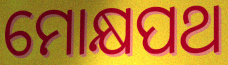
ମୋକ୍ଷପଥ